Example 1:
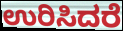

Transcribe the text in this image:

ಉರಿಸಿದರೆ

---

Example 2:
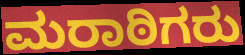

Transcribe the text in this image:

ಮರಾಠಿಗರು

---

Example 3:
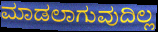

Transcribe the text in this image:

ಮಾಡಲಾಗುವುದಿಲ್ಲ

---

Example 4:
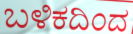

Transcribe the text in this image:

ಬಳಿಕದಿಂದ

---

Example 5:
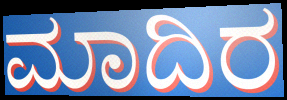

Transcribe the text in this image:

ಮಾದಿರ